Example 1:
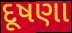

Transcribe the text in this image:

દૂષણા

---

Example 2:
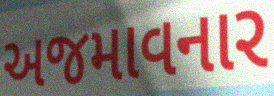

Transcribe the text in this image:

અજમાવનાર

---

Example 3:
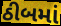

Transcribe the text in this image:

ઠીબમાં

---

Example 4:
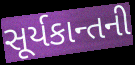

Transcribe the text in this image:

સૂર્યકાન્તની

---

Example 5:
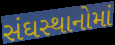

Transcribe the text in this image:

સંઘસ્થાનોમાં